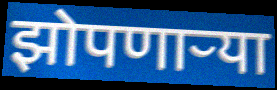
झोपणाऱ्या